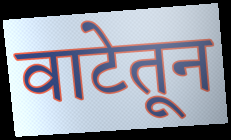
वाटेतून